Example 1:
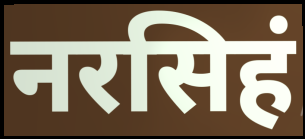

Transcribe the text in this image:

नरसिहं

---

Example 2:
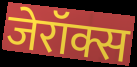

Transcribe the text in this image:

जेरॉक्स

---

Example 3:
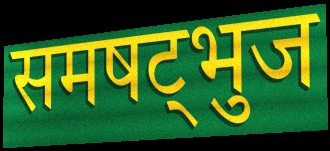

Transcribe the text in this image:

समषट्भुज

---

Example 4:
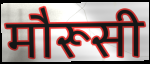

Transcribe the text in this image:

मौरूसी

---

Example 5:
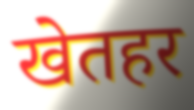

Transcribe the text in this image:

खेतहर